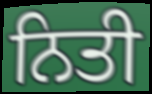
ਨਿਤੀ